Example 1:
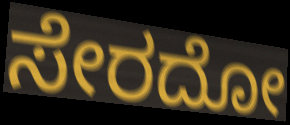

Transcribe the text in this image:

ಸೇರದೋ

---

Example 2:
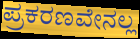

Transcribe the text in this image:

ಪ್ರಕರಣವೇನಲ್ಲ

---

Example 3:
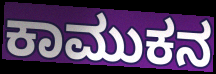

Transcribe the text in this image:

ಕಾಮುಕನ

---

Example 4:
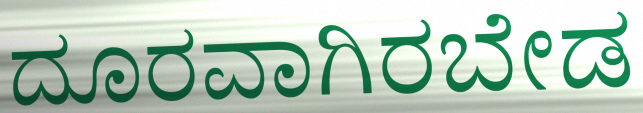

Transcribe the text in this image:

ದೂರವಾಗಿರಬೇಡ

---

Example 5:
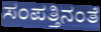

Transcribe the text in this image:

ಸಂಪತ್ತಿನಂತೆ